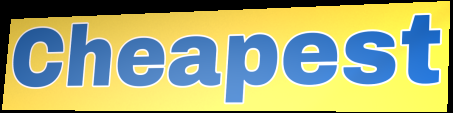
Cheapest